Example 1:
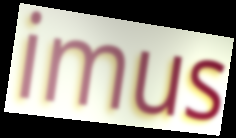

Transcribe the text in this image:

imus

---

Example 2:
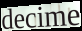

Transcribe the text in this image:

decime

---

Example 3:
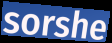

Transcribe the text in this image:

sorshe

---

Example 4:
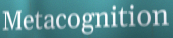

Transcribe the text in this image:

Metacognition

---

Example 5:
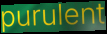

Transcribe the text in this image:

purulent